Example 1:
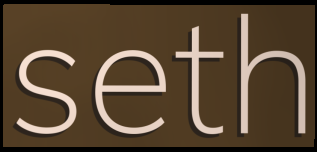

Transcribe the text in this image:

seth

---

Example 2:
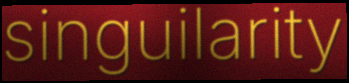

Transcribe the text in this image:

singuilarity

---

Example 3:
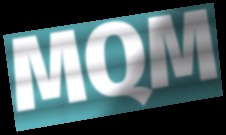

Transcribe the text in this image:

MQM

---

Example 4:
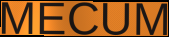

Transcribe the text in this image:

MECUM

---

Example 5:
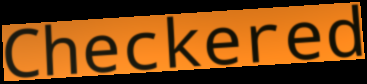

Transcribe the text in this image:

Checkered